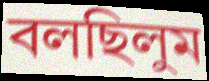
বলছিলুম